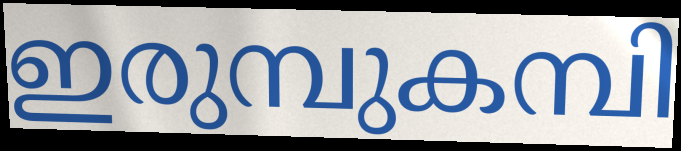
ഇരുമ്പുകമ്പി